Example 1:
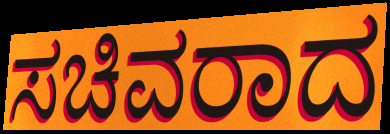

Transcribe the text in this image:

ಸಚಿವರಾದ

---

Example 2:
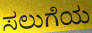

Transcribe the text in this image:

ಸಲುಗೆಯ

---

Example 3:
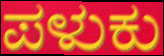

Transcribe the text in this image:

ಪಳುಕು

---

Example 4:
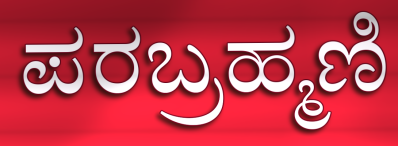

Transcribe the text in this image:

ಪರಬ್ರಹ್ಮಣಿ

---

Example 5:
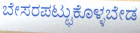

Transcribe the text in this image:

ಬೇಸರಪಟ್ಟುಕೊಳ್ಳಬೇಡ